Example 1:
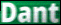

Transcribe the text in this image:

Dant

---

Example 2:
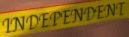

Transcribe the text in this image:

INDEPENDENT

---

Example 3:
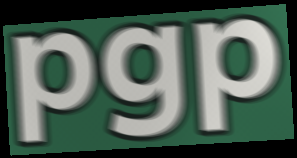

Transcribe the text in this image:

pgp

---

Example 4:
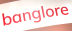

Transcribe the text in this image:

banglore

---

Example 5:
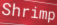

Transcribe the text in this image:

Shrimp